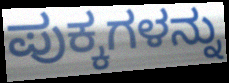
ಪುಕ್ಕಗಳನ್ನು